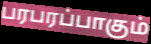
பரபரப்பாகும்